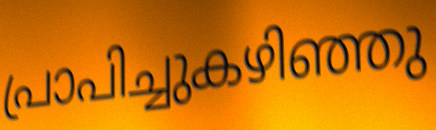
പ്രാപിച്ചുകഴിഞ്ഞു